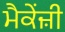
ਮੈਕੇਂਜ਼ੀ